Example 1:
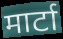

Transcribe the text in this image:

मार्टा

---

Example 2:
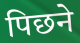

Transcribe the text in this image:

पिछने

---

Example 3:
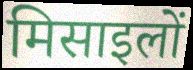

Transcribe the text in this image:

मिसाइलों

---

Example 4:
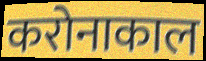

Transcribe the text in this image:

करोनाकाल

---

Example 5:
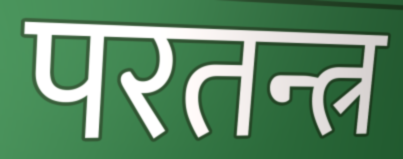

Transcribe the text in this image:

परतन्त्र